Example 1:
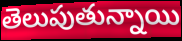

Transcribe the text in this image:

తెలుపుతున్నాయి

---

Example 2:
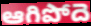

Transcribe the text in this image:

ఆగిపోదె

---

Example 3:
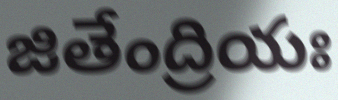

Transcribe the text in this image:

జితేంద్రియః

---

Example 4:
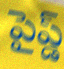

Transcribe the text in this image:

పైప్డ్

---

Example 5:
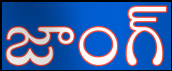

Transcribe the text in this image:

జాంగ్